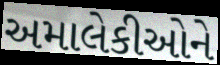
અમાલેકીઓને